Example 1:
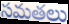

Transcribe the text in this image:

సమతలు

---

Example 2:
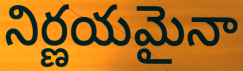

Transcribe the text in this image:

నిర్ణయమైనా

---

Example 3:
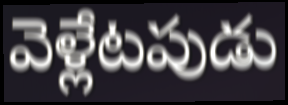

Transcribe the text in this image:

వెళ్లేటపుడు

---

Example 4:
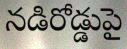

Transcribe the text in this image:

నడిరోడ్డుపై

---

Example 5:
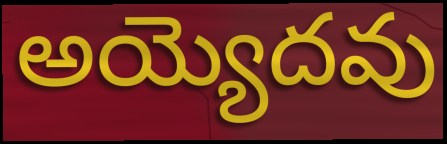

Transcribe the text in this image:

అయ్యెదవు